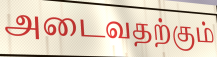
அடைவதற்கும்